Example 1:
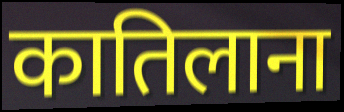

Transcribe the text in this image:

कातिलाना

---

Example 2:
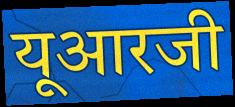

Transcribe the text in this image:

यूआरजी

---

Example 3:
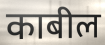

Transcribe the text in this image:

काबील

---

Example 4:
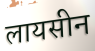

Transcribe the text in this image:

लायसीन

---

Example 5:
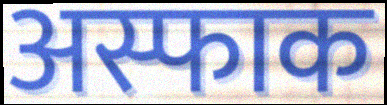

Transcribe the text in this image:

अस्फाक